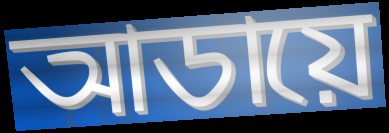
আডায়ে